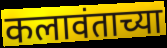
कलावंताच्या